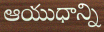
ఆయుధాన్ని